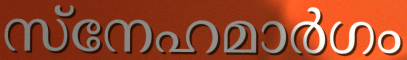
സ്നേഹമാർഗം